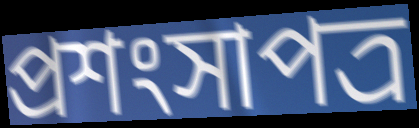
প্রশংসাপত্র